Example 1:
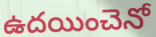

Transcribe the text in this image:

ఉదయించెనో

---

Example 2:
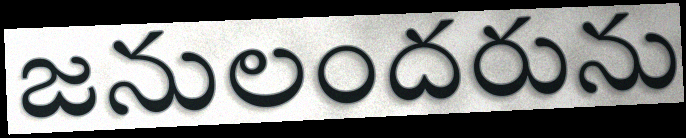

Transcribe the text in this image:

జనులందరును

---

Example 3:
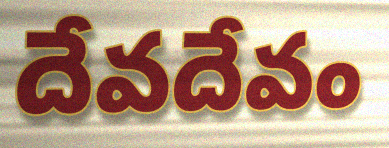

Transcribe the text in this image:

దేవదేవం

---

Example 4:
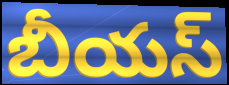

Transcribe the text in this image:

బీయస్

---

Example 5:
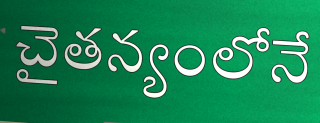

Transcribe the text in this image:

చైతన్యంలోనే